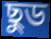
ছুড